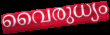
വൈരുധ്യം